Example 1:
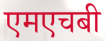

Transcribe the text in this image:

एमएचबी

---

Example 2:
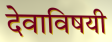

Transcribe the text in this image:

देवाविषयी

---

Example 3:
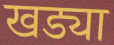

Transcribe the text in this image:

खड्या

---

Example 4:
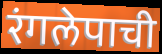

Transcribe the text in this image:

रंगलेपाची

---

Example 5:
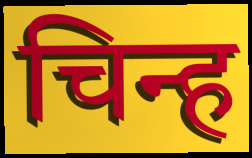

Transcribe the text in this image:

चिन्ह